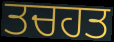
ਤਚਹਤ